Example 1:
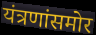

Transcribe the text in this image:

यंत्रणांसमोर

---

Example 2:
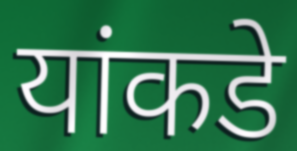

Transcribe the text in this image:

यांकडे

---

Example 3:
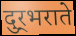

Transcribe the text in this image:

दुर्भराते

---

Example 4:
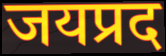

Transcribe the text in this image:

जयप्रद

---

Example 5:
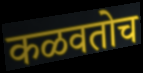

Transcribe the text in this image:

कळवतोच